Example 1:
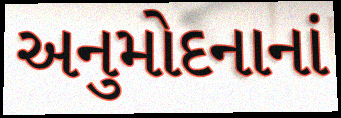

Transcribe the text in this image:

અનુમોદનાનાં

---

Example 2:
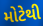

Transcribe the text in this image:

મોટેથી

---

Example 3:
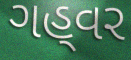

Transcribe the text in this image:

ગહ્‌વર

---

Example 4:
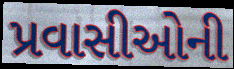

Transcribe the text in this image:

પ્રવાસીઓની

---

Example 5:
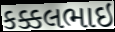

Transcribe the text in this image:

કક્કલભાઇ